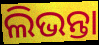
ଲିଭନ୍ତା